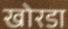
खोरडा